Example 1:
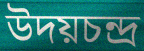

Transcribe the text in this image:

উদয়চন্দ্র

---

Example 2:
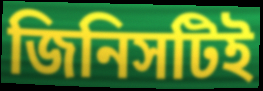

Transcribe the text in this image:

জিনিসটিই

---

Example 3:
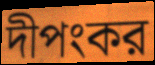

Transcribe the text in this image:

দীপংকর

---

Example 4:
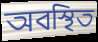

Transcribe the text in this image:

অবস্থিত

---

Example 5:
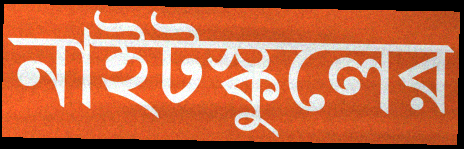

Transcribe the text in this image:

নাইটস্কুলের